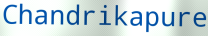
Chandrikapure